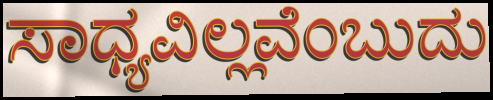
ಸಾಧ್ಯವಿಲ್ಲವೆಂಬುದು